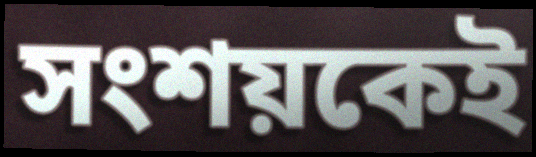
সংশয়কেই